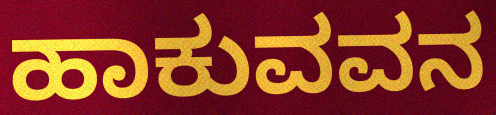
ಹಾಕುವವನ